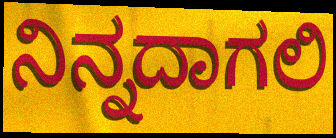
ನಿನ್ನದಾಗಲಿ